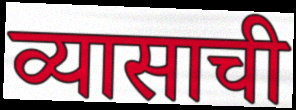
व्यासाची